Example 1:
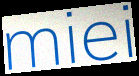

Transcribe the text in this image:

miei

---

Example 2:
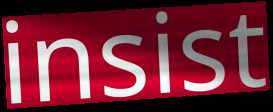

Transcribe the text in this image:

insist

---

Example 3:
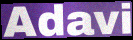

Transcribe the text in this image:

Adavi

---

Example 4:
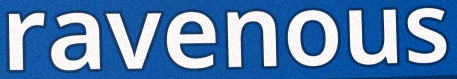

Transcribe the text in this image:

ravenous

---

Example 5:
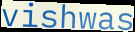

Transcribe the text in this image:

vishwas